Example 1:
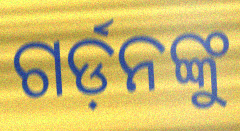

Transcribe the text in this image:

ଗର୍ଡ଼ନଙ୍କୁ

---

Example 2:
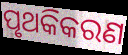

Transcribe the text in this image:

ପୃଥକିକରଣ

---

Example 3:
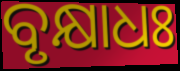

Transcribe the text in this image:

ବୃକ୍ଷାଧଃ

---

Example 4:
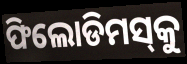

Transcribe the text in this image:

ଫିଲୋଡିମସ୍‌କୁ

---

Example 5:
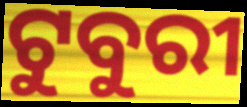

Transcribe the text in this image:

ଟୁବୁରୀ